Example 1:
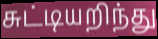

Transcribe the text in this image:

சுட்டியறிந்து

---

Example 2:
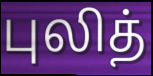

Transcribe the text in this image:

புலித்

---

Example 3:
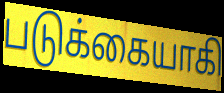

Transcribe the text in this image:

படுக்கையாகி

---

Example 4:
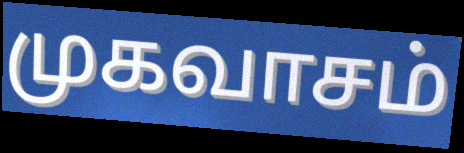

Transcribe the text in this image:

முகவாசம்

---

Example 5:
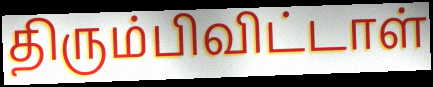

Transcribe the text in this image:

திரும்பிவிட்டாள்